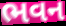
ભવન